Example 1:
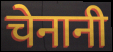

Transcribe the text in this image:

चेनानी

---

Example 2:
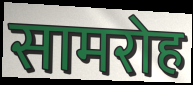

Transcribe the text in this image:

सामरोह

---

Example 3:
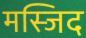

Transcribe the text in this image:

मस्जिद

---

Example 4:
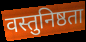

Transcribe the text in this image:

वस्तुनिष्ठता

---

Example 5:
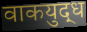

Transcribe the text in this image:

वाकयुद्ध